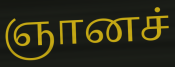
ஞானச்